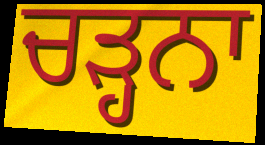
ਚੜ੍ਹਨਾ